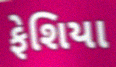
ફેશિયા